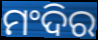
ମଂଦିର